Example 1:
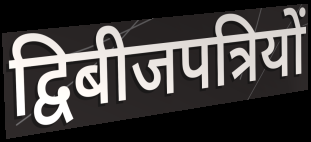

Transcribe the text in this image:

द्विबीजपत्रियों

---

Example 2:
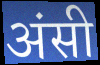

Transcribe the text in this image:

अंसी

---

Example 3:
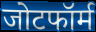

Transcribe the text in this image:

जोटफॉर्म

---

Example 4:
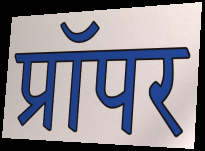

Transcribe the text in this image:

प्रॉपर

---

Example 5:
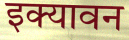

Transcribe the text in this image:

इक्‍यावन